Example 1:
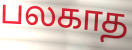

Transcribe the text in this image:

பலகாத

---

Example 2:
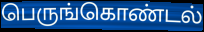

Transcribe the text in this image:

பெருங்கொண்டல்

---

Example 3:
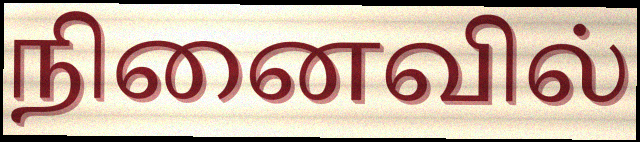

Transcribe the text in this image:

நினைவில்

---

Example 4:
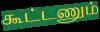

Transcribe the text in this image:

கூட்டணும்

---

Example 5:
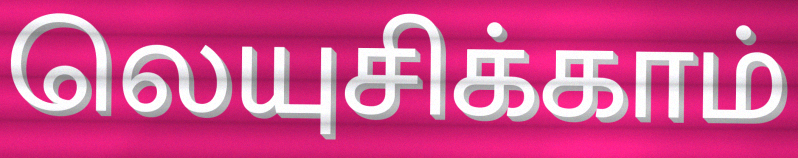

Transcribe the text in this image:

லெயுசிக்காம்